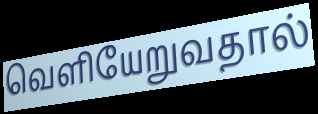
வெளியேறுவதால்